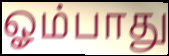
ஓம்பாது